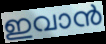
ഇവാൻ